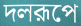
দলরূপে